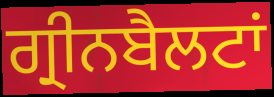
ਗ੍ਰੀਨਬੈਲਟਾਂ